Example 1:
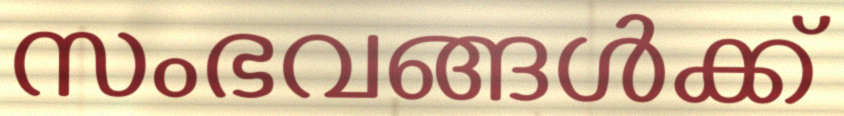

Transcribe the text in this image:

സംഭവങ്ങൾക്ക്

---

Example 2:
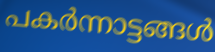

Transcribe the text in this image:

പകർന്നാട്ടങ്ങൾ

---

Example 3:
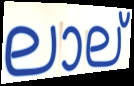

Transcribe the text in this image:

ലാല്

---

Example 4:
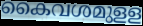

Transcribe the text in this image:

കൈവശമുളള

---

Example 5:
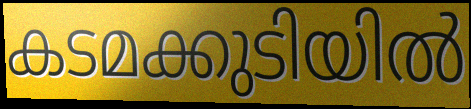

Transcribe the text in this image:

കടമക്കുടിയിൽ